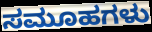
ಸಮೂಹಗಳು